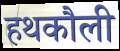
हथकौली